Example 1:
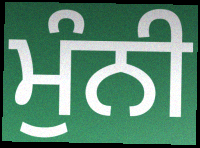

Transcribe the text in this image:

ਮੁੰਨੀ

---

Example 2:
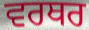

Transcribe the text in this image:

ਵਰਥਰ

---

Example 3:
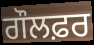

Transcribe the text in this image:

ਗੌਲਫ਼ਰ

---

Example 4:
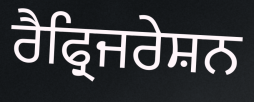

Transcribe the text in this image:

ਰੈਫ੍ਰਿਜਰੇਸ਼ਨ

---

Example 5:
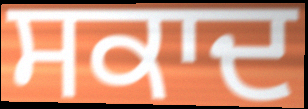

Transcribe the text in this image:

ਸਕਾਦ